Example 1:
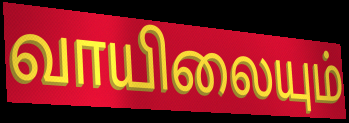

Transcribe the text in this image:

வாயிலையும்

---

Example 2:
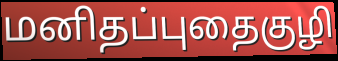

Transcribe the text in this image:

மனிதப்புதைகுழி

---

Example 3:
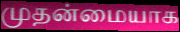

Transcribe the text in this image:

முதன்மையாக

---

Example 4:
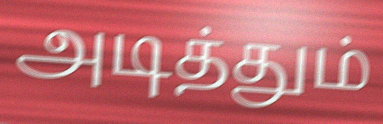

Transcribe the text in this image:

அடித்தும்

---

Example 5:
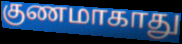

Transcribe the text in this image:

குணமாகாது